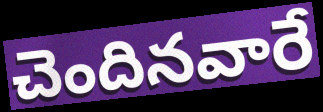
చెందినవారే